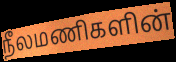
நீலமணிகளின்